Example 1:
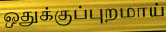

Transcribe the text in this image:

ஒதுக்குப்புறமாய்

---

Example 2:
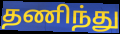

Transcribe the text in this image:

தணிந்து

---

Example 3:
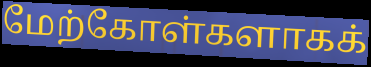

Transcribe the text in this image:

மேற்கோள்களாகக்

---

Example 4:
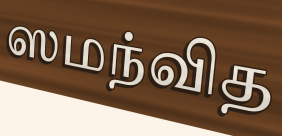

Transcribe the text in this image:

ஸமந்வித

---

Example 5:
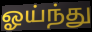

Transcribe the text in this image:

ஓய்ந்து